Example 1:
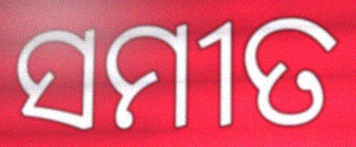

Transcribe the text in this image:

ସମୀତ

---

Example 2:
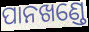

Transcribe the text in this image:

ପାନଖଣ୍ଡେ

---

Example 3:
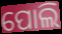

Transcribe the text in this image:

ପୋଲି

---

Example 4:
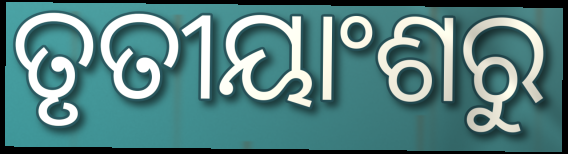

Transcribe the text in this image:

ତୃତୀୟାଂଶରୁ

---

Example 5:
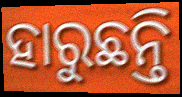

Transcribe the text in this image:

ହାରୁଛନ୍ତି